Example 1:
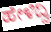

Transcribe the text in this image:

ಹೇಳಿದ್ವಿ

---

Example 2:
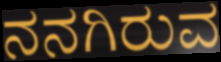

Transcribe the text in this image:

ನನಗಿರುವ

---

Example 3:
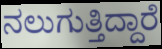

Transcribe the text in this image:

ನಲುಗುತ್ತಿದ್ದಾರೆ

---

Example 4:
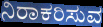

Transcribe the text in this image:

ನಿರಾಕರಿಸುವ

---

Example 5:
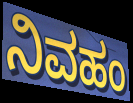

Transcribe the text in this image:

ನಿವಹಂ